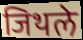
जिथले